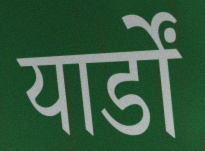
यार्डों